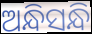
ଅନ୍ଧିସନ୍ଧି